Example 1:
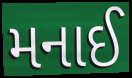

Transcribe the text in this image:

મનાઈ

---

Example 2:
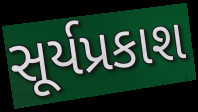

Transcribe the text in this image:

સૂર્યપ્રકાશ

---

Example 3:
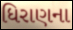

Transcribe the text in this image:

ધિરાણના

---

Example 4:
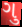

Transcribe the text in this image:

ગુ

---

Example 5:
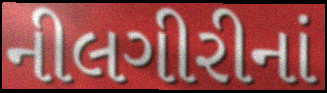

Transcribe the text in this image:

નીલગીરીનાં